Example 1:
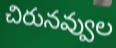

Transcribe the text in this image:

చిరునవ్వుల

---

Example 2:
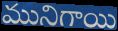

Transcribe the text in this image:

మునిగాయి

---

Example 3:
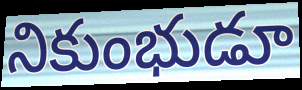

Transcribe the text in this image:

నికుంభుడూ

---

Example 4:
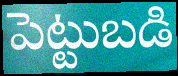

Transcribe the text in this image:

పెట్టుబడి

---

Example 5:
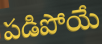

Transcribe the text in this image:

పడిపోయే